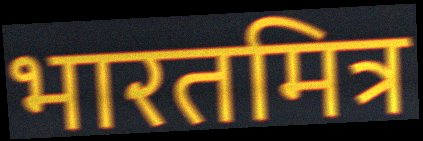
भारतमित्र